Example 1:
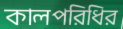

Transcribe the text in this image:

কালপরিধির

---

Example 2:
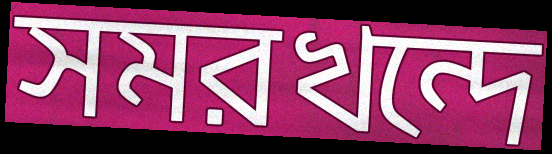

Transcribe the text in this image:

সমরখন্দে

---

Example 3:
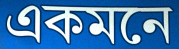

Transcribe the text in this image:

একমনে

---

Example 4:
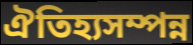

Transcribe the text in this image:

ঐতিহ্যসম্পন্ন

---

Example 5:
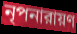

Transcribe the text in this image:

নৃপনারায়ণ